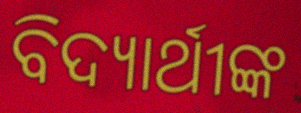
ବିଦ୍ୟାର୍ଥୀଙ୍କ